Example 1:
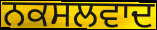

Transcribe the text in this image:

ਨਕਸਲਵਾਦ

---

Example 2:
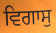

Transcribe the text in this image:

ਵਿਗਾਸੁ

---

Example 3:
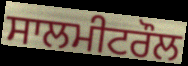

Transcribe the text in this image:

ਸਾਲਮੀਟਰੌਲ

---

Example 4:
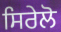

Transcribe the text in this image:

ਸਿਰੇਲੋ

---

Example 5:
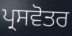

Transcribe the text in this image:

ਪ੍ਰਸਵੋਤਰ